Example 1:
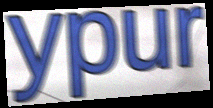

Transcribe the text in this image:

ypur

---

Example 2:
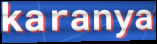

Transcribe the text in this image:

karanya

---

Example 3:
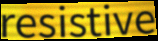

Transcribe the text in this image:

resistive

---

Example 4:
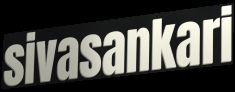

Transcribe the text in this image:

sivasankari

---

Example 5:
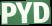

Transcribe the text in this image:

PYD